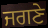
ਜਗਣੇ